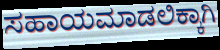
ಸಹಾಯಮಾಡಲಿಕ್ಕಾಗಿ